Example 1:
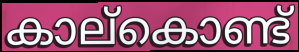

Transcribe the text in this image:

കാല്കൊണ്ട്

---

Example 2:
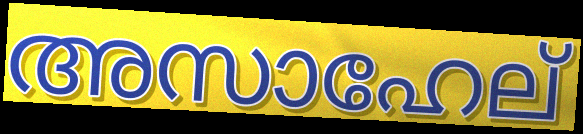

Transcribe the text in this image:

അസാഹേല്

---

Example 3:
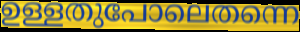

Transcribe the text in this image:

ഉള്ളതുപോലെതന്നെ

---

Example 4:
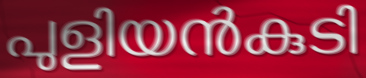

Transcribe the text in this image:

പുളിയൻകുടി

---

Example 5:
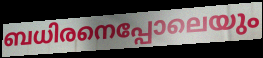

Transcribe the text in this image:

ബധിരനെപ്പോലെയും